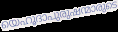
യെഹൂദാപുരുഷന്മാരുടെ